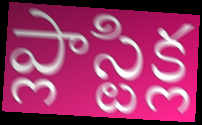
ప్లాస్టిక్ల